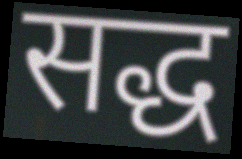
सद्ध